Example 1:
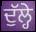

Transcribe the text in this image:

ਦੁੱਲ੍ਹੇ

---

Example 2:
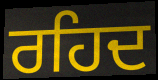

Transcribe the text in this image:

ਰਹਿਦ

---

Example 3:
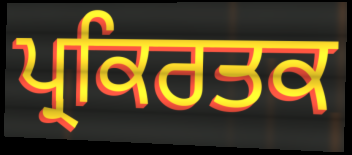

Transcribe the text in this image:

ਪ੍ਰਕਿਰਤਕ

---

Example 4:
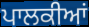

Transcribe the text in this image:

ਪਾਲਕੀਆਂ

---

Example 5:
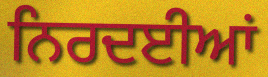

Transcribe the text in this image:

ਨਿਰਦਈਆਂ